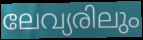
ലേവ്യരിലും